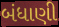
બંધાણી